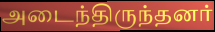
அடைந்திருந்தனர்